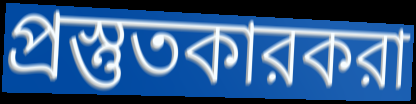
প্রস্তুতকারকরা